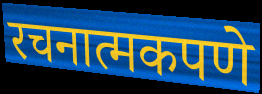
रचनात्मकपणे